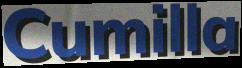
Cumilla